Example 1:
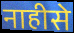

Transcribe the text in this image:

नाहीसे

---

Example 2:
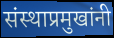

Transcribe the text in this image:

संस्थाप्रमुखांनी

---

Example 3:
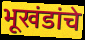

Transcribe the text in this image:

भूखंडांचे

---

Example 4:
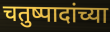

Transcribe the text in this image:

चतुष्पादांच्या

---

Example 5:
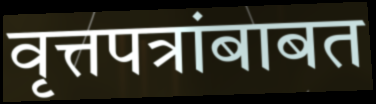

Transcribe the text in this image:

वृत्तपत्रांबाबत